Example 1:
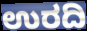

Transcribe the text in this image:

ಉರದಿ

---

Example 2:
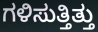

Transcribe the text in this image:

ಗಳಿಸುತ್ತಿತ್ತು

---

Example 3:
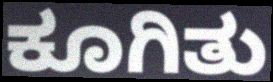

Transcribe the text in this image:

ಕೂಗಿತು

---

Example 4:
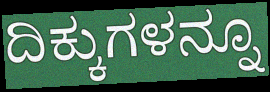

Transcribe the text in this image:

ದಿಕ್ಕುಗಳನ್ನೂ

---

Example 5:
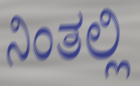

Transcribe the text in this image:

ನಿಂತಲ್ಲಿ